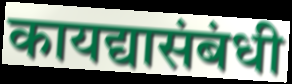
कायद्यासंबंधी